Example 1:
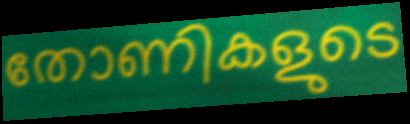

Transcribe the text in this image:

തോണികളുടെ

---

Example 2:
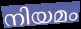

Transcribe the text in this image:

നിയമം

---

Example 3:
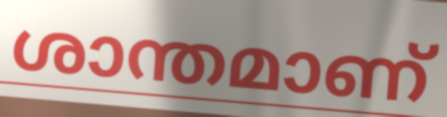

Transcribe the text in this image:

ശാന്തമാണ്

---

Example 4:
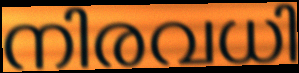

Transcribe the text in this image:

നിരവധി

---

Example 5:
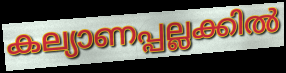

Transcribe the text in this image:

കല്യാണപ്പല്ലക്കിൽ